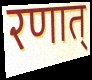
रणात्